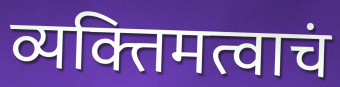
व्यक्तिमत्वाचं